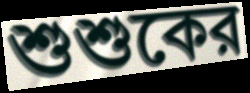
শুশুকের